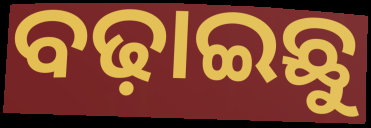
ବଢ଼ାଇଛୁ